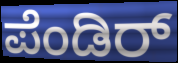
ಪೆಂಡಿರ್